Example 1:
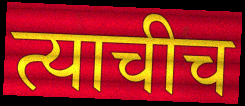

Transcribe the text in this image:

त्याचीच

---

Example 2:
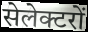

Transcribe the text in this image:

सेलेक्टरों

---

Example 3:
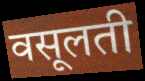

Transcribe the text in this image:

वसूलती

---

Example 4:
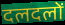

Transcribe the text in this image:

दलदलों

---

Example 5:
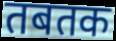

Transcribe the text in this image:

तबतक